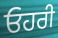
ਓਹਰੀ